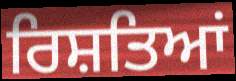
ਰਿਸ਼ਤਿਆਂ